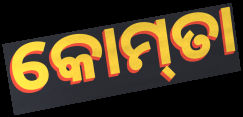
କୋମ୍‌ତା